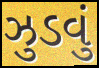
ઝુડવું